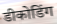
डीकोडिंग